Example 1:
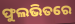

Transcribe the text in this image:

ଫୁଲଭିତରେ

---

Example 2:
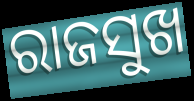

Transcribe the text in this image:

ରାଜସୁଖ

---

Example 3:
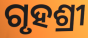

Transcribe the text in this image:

ଗୃହଶ୍ରୀ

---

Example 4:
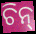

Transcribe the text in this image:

ଚିନ୍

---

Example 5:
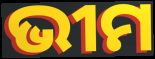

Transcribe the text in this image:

ଭୀମ